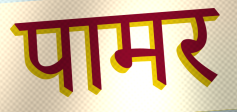
पामर